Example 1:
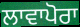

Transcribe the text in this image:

ਲਾਵਾਪੋਰਾ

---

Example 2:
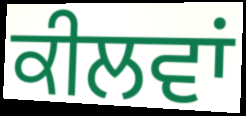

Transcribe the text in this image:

ਕੀਲਵਾਂ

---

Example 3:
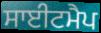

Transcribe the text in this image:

ਸਾਈਟਮੈਪ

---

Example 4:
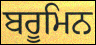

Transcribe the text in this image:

ਬਰੂਮਿਨ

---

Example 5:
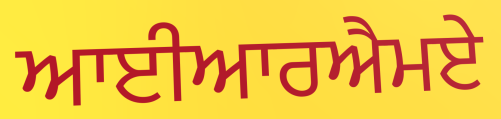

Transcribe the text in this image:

ਆਈਆਰਐਮਏ